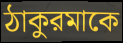
ঠাকুরমাকে